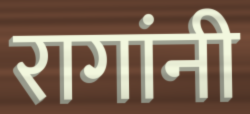
रागांनी